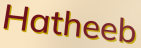
Hatheeb